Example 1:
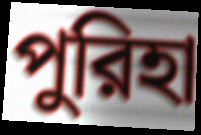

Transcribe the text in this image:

পুরিহা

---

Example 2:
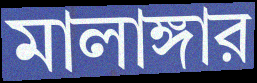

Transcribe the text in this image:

মালাঙ্গার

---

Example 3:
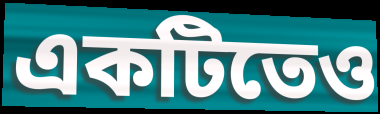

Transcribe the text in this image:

একটিতেও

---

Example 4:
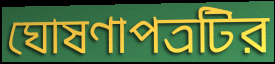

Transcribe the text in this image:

ঘোষণাপত্রটির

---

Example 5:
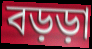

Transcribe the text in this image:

বড়ড়া